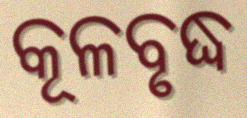
କୂଳବୃଦ୍ଧ